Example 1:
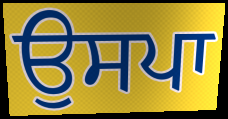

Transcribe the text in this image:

ਉਸਪਾ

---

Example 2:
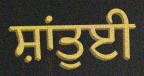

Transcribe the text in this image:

ਸ਼ਾਂਤੁਈ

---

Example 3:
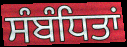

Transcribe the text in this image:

ਸੰਬੰਧਿਤਾਂ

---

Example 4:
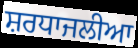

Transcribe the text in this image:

ਸ਼ਰਧਾਜਲੀਆ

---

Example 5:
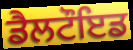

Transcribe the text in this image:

ਡੈਲਟੌਇਡ